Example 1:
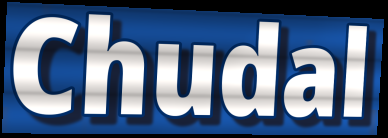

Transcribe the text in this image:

Chudal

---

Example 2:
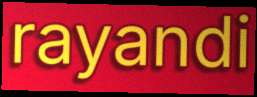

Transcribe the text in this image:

rayandi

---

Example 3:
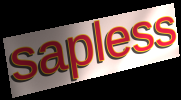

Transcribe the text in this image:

sapless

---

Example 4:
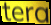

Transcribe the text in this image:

tera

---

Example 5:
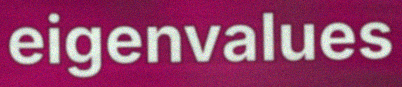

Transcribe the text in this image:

eigenvalues